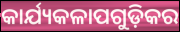
କାର୍ଯ୍ୟକଳାପଗୁଡ଼ିକର